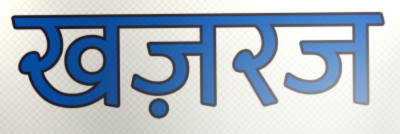
खज़रज